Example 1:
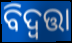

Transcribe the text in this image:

ବିଦ୍ୱତ୍ତା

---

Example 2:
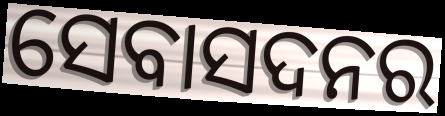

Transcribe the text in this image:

ସେବାସଦନର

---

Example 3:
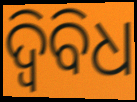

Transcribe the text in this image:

ଦ୍ଵିବିଧ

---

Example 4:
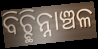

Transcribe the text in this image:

ବିଚ୍ଛିନ୍ନାଞ୍ଚଳ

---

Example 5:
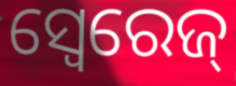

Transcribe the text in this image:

ସ୍ୱେରେଜ୍